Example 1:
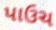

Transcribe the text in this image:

પાઉચ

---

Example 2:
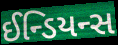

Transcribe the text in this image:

ઈન્ડિયન્સ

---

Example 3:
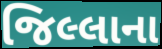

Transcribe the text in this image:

જિલ્લાના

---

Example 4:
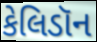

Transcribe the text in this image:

કેલિડૉન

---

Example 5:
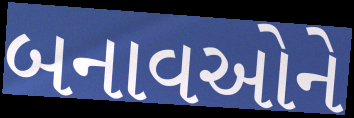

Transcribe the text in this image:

બનાવઓને